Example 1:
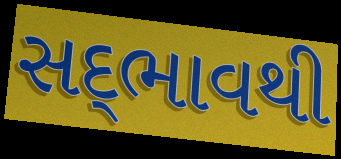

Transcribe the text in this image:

સદ્‍ભાવથી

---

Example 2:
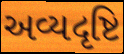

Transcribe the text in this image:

અવ્યદૃષ્ટિ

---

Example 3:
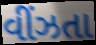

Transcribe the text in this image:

વીંઝતા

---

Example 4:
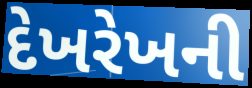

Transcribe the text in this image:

દેખરેખની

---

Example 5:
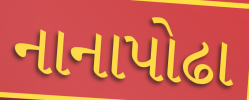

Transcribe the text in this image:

નાનાપોઢા